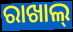
ରାଖାଲ୍